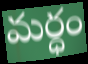
మర్ధం